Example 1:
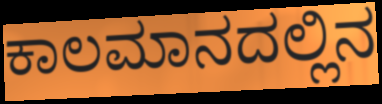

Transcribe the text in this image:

ಕಾಲಮಾನದಲ್ಲಿನ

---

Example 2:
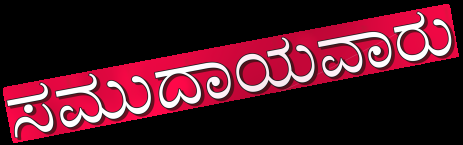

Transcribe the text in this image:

ಸಮುದಾಯವಾರು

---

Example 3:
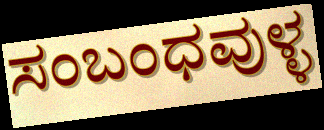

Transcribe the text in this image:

ಸಂಬಂಧವುಳ್ಳ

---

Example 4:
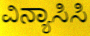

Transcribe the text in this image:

ವಿನ್ಯಾಸಿಸಿ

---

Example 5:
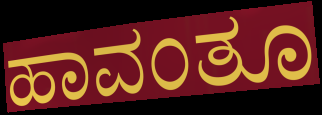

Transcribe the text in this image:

ಹಾವಂತೂ